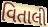
વિતાલી